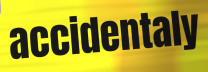
accidentaly